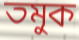
তমুক